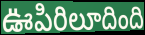
ఊపిరిలూదింది